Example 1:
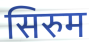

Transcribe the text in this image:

सिरुम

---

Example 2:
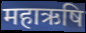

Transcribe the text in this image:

महाऋषि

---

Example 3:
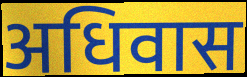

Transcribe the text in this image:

अधिवास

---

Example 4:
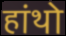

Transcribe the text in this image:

हांथो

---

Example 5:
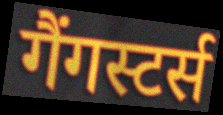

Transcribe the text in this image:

गैंगस्टर्स